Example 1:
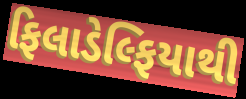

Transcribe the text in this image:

ફિલાડેલ્ફિયાથી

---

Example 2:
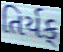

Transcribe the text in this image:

તિર્યક્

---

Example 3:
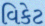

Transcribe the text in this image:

વિકેટ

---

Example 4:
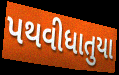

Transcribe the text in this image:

પથવીધાતુયા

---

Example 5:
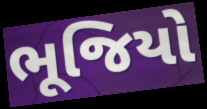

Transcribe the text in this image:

ભૂજિયો